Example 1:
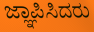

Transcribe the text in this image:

ಜ್ಞಾಪಿಸಿದರು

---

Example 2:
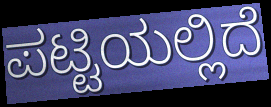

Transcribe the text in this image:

ಪಟ್ಟಿಯಲ್ಲಿದೆ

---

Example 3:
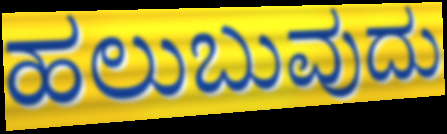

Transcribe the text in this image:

ಹಲುಬುವುದು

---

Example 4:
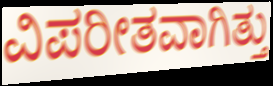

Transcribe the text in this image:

ವಿಪರೀತವಾಗಿತ್ತು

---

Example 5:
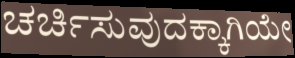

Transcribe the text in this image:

ಚರ್ಚಿಸುವುದಕ್ಕಾಗಿಯೇ